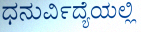
ಧನುರ್ವಿದ್ಯೆಯಲ್ಲಿ